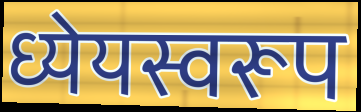
ध्येयस्वरूप